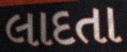
લાદતા